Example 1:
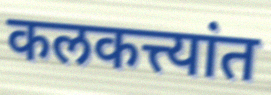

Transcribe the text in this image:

कलकत्त्यांत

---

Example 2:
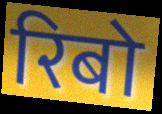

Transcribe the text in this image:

रिबो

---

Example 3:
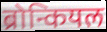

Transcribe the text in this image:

ब्रोन्कियल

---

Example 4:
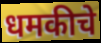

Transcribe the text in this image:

धमकीचे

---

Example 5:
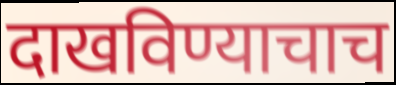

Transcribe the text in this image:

दाखविण्याचाच